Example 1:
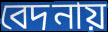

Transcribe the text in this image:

বেদনায়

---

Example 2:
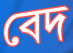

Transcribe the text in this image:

বেদ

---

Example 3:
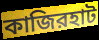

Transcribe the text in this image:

কাজিরহাট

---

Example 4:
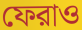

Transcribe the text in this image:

ফেরাও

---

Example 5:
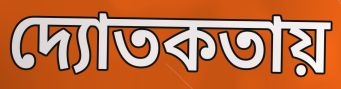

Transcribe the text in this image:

দ্যোতকতায়